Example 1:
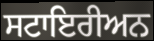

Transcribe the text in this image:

ਸਟਾਇਰੀਅਨ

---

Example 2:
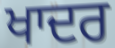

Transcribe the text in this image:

ਖਾਦਰ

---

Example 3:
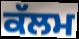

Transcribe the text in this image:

ਕੱਲਮ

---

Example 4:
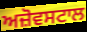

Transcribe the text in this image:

ਅਜ਼ੋਵਸਟਾਲ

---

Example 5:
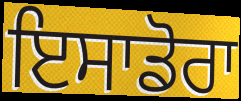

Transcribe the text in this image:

ਇਸਾਡੋਰਾ